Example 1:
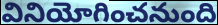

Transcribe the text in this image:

వినియోగించనుంది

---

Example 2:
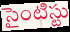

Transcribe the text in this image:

సైంటిస్టు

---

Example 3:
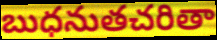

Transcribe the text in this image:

బుధనుతచరితా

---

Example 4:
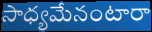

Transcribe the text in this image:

సాధ్యమేనంటారా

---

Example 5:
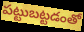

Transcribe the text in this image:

పట్టుబట్టడంతో